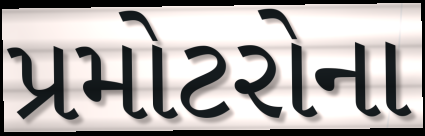
પ્રમોટરોના